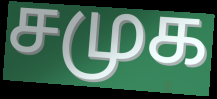
சமுக